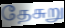
தேசுறு